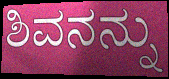
ಶಿವನನ್ನು